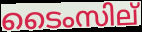
ടൈംസില്